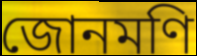
জোনমণি